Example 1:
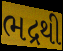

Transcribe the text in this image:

ભદ્રથી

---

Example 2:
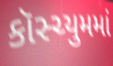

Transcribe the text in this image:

કૉસ્ચ્યુમમાં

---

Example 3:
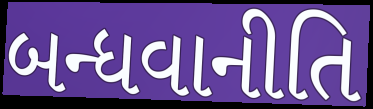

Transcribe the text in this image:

બન્ધવાનીતિ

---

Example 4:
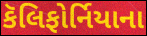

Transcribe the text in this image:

કૅલિફોર્નિયાના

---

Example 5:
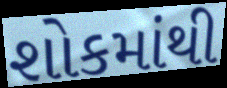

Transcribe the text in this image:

શોકમાંથી